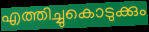
എത്തിച്ചുകൊടുക്കും